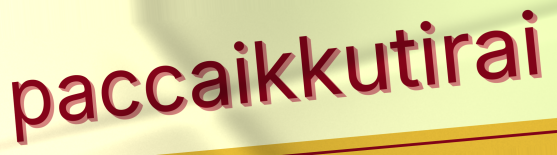
paccaikkutirai